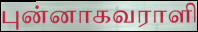
புன்னாகவராளி